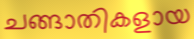
ചങ്ങാതികളായ